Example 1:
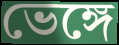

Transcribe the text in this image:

ভেঙ্গে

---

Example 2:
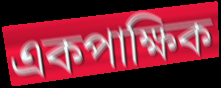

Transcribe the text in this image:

একপাক্ষিক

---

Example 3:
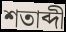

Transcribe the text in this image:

শতাব্দী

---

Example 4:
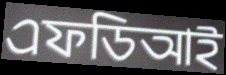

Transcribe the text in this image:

এফডিআই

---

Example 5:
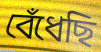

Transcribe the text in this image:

বেঁধেছি